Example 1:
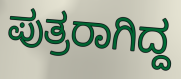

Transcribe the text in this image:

ಪುತ್ರರಾಗಿದ್ದ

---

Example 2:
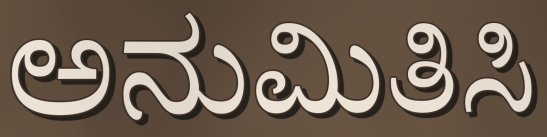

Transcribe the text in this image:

ಅನುಮಿತಿಸಿ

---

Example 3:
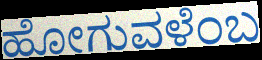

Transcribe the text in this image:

ಹೋಗುವಳೆಂಬ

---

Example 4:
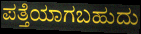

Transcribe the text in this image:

ಪತ್ತೆಯಾಗಬಹುದು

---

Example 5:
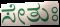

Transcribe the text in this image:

ಸೇತುಃ